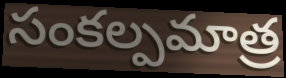
సంకల్పమాత్ర